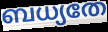
ബധ്യതേ